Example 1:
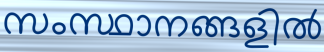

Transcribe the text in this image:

സംസ്ഥാനങ്ങളിൽ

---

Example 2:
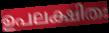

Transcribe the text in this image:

ഉപലക്ഷിതഃ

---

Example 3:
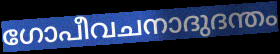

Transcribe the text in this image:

ഗോപീവചനാദുദന്തം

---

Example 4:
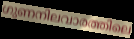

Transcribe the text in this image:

ഗുണനിലവാരത്തിലെ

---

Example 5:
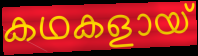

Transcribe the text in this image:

കഥകളായ്